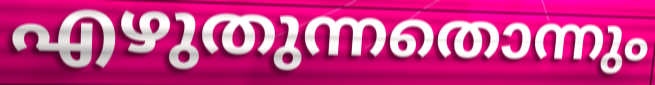
എഴുതുന്നതൊന്നും